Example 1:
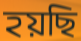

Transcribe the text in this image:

হয়ছি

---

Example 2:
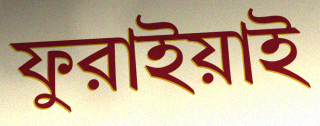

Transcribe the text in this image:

ফুরাইয়াই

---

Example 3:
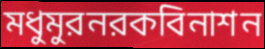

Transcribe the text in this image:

মধুমুরনরকবিনাশন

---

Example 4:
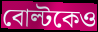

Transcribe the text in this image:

বোল্টকেও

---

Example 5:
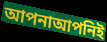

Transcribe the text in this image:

আপনাআপনিই